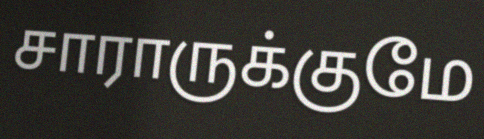
சாராருக்குமே